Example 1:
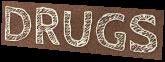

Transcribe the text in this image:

DRUGS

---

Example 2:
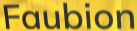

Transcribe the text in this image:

Faubion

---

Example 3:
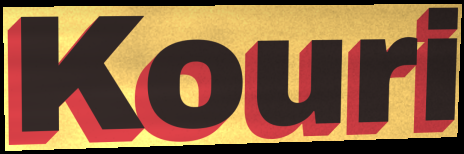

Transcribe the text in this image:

Kouri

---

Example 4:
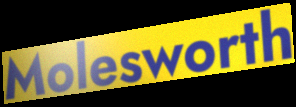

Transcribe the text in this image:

Molesworth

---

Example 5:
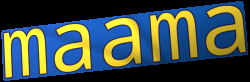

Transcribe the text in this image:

maama